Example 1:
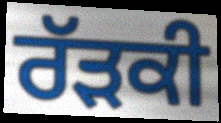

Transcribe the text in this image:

ਰੱੜਕੀ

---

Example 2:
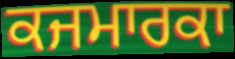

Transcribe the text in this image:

ਕਜਮਾਰਕਾ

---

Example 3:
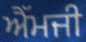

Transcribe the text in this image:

ਐੱਮਜੀ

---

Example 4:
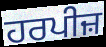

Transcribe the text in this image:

ਹਰਪੀਜ਼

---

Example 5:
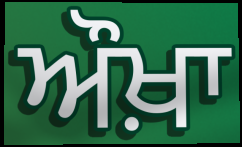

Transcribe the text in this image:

ਔਖ਼ਾ